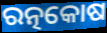
ରତ୍ନକୋଷ